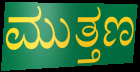
ಮುತ್ತಣ